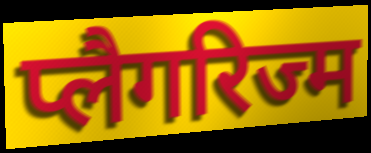
प्लैगरिज्म